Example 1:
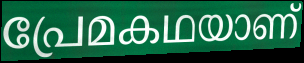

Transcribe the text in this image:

പ്രേമകഥയാണ്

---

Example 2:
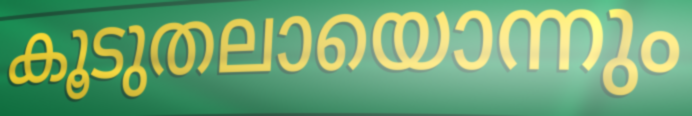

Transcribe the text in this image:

കൂടുതലായൊന്നും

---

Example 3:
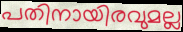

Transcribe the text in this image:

പതിനായിരവുമല്ല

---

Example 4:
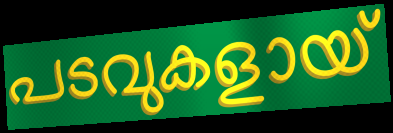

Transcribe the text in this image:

പടവുകളായ്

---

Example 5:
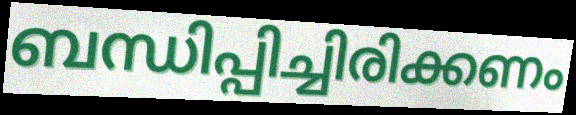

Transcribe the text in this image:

ബന്ധിപ്പിച്ചിരിക്കണം